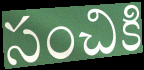
సంచికి